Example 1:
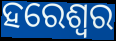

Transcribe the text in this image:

ହରେଶ୍ୱର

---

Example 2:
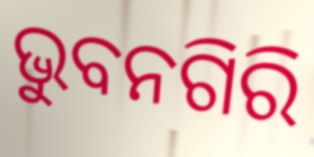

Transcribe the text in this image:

ଭୁବନଗିରି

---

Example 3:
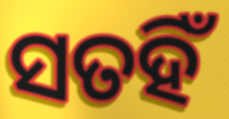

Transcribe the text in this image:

ସତହିଁ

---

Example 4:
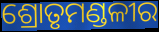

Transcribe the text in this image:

ଶ୍ରୋତୃମଣ୍ଡଳୀର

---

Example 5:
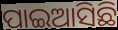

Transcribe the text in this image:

ପାଇଆସିଛି